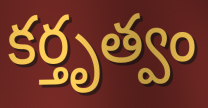
కర్తృత్వం